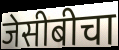
जेसीबीचा